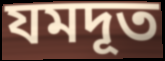
যমদূত